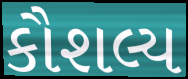
કૌશલ્ય